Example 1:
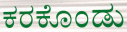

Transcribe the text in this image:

ಕರಕೊಂಡು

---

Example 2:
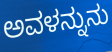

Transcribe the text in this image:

ಅವಳನ್ನುನು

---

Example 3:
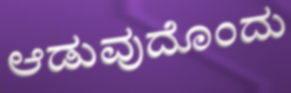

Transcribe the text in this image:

ಆಡುವುದೊಂದು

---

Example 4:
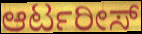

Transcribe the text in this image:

ಆರ್ಟರೀಸ್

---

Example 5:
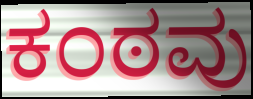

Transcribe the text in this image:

ಕಂಠವು